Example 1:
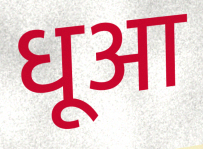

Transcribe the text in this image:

धूआ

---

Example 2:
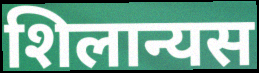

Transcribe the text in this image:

शिलान्यस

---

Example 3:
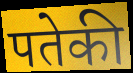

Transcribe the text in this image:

पतेकी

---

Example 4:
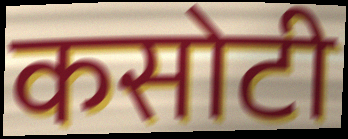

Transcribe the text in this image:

कसोटी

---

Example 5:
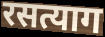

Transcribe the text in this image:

रसत्याग